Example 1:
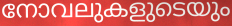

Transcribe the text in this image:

നോവലുകളുടെയും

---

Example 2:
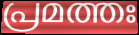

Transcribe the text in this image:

പ്രമത്തഃ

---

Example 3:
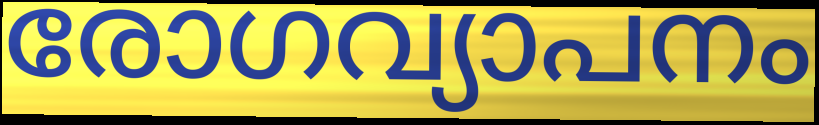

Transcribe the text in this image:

രോഗവ്യാപനം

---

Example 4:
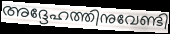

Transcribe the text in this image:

അദ്ദേഹത്തിനുവേണ്ടി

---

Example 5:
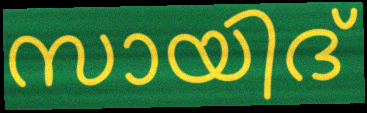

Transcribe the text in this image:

സായിദ്